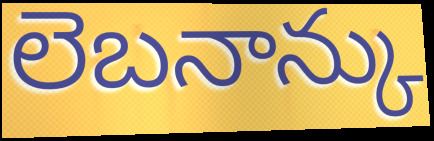
లెబనాన్కు